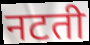
नटती